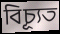
বিচ্যূত